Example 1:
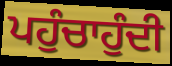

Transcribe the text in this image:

ਪਹੁੰਚਾਹੁੰਦੀ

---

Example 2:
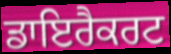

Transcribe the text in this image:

ਡਾਇਰੈਕਰਟ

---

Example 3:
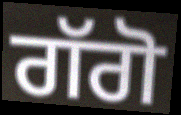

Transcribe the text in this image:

ਗੱਗੋ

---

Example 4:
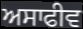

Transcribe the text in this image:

ਅਸਾਫੀਵ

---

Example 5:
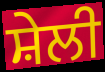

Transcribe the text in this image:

ਸ਼ੇਲੀ